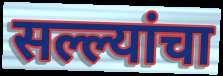
सल्ल्यांचा